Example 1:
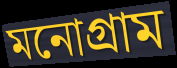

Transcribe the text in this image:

মনোগ্রাম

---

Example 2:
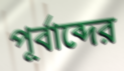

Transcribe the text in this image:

পূর্বাব্দের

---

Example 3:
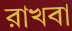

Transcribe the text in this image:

রাখবা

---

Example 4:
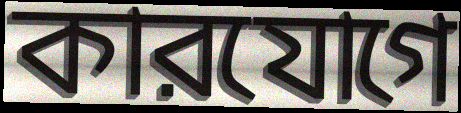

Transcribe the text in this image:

কারযোগে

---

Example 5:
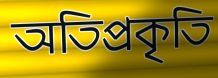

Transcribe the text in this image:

অতিপ্রকৃতি